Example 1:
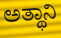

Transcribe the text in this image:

ಅತ್ಥಾನಿ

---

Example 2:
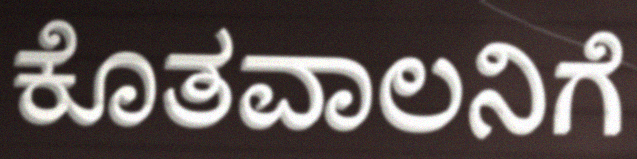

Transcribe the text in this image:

ಕೊತವಾಲನಿಗೆ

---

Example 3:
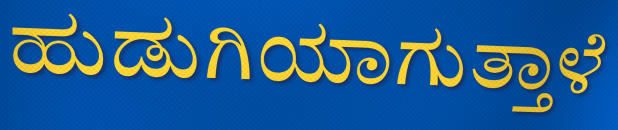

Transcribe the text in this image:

ಹುಡುಗಿಯಾಗುತ್ತಾಳೆ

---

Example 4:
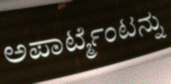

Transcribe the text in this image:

ಅಪಾರ್ಟ್ಮೆಂಟನ್ನು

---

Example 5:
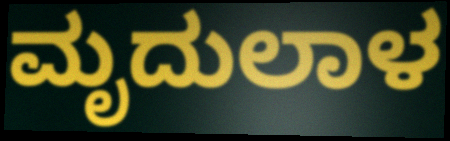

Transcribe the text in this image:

ಮೃದುಲಾಳ